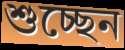
শুচ্ছেন